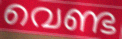
വെണ്ട